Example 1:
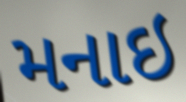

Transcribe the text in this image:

મનાઇ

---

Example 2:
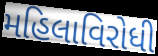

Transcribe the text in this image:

મહિલાવિરોધી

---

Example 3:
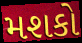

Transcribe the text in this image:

મશકો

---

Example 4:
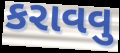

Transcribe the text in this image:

કરાવવુ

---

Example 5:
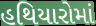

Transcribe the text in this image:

હથિયારોમાં